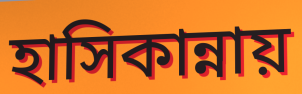
হাসিকান্নায়